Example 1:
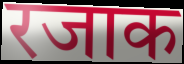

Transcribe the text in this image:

रजाक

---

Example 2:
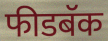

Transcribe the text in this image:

फीडबॅक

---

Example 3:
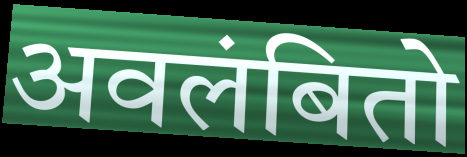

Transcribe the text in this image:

अवलंबितो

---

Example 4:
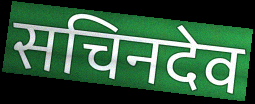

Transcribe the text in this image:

सचिनदेव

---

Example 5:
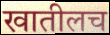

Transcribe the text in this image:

खातीलच